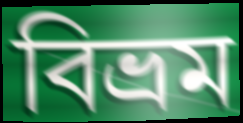
বিভ্রম